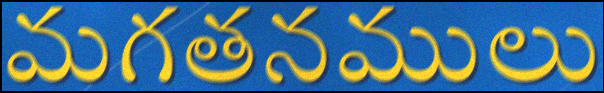
మగతనములు